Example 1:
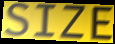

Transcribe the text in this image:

SIZE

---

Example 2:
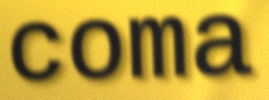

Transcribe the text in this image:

coma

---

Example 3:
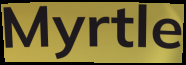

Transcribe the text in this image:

Myrtle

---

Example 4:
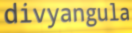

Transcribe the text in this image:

divyangula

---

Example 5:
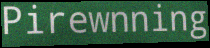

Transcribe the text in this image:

Pirewnning